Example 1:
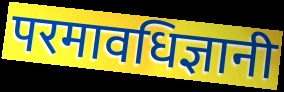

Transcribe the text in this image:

परमावधिज्ञानी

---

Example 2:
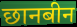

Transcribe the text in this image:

छानबीन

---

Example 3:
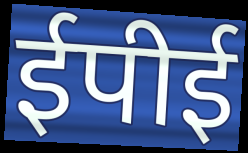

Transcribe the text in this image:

ईपीई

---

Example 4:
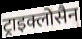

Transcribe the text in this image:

ट्राइक्लोसैन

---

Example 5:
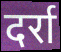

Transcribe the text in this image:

दर्रा